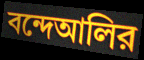
বন্দেআলির